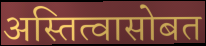
अस्तित्वासोबत